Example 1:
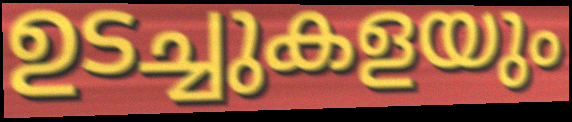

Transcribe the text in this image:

ഉടച്ചുകളയും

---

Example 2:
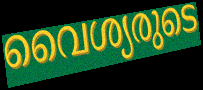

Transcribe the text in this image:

വൈശ്യരുടെ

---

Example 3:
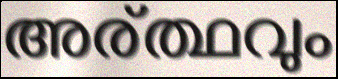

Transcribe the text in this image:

അര്ത്ഥവും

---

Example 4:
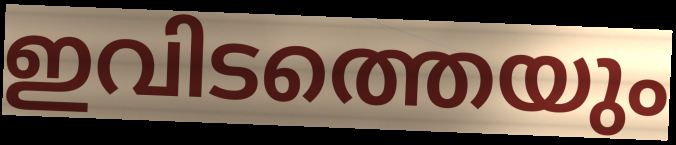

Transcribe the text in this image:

ഇവിടത്തെയും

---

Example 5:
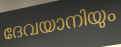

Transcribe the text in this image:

ദേവയാനിയും